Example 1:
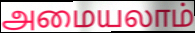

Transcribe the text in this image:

அமையலாம்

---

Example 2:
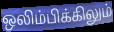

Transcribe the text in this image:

ஒலிம்பிக்கிலும்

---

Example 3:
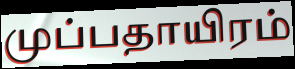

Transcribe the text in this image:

முப்பதாயிரம்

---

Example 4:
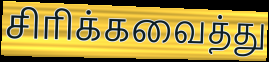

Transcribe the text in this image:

சிரிக்கவைத்து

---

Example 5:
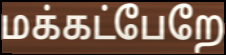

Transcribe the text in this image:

மக்கட்பேறே